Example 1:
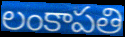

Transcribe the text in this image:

లంకాపతి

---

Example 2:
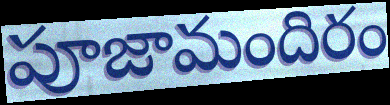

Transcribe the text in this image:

పూజామందిరం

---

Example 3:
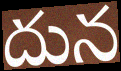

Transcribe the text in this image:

దున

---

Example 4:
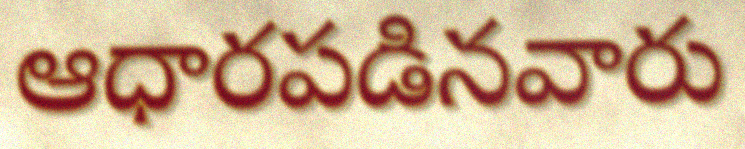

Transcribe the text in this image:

ఆధారపడినవారు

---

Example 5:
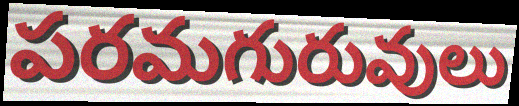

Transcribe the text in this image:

పరమగురువులు